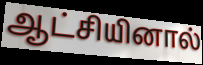
ஆட்சியினால்